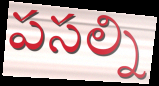
పసల్ని